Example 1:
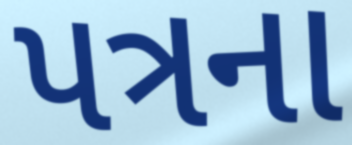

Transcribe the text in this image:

પત્રના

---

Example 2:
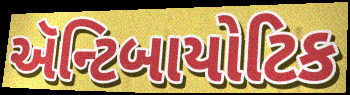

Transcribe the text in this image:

ઍન્ટિબાયોટિક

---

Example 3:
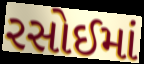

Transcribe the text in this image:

રસોઈમાં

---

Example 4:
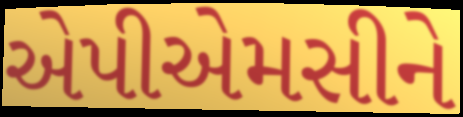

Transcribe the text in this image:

એપીએમસીને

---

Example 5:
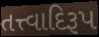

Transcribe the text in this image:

તત્ત્વાદિરૂપ